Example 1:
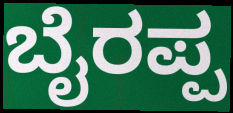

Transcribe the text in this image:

ಬೈರಪ್ಪ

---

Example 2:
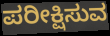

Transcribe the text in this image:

ಪರೀಕ್ಷಿಸುವ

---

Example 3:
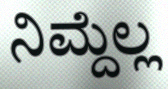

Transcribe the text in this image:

ನಿಮ್ದೆಲ್ಲ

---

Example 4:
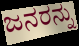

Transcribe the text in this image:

ಜನರನ್ನು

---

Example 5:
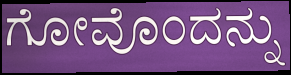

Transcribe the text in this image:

ಗೋವೊಂದನ್ನು